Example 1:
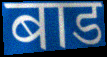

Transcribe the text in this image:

बाड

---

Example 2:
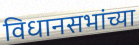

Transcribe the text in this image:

विधानसभांच्या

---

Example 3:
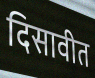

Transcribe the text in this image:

दिसावीत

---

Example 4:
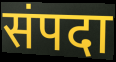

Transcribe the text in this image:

संपदा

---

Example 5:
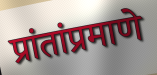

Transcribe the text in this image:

प्रांतांप्रमाणे